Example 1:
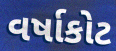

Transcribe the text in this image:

વર્ષાકોટ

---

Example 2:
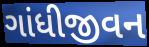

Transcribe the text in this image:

ગાંધીજીવન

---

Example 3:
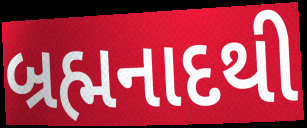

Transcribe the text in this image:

બ્રહ્મનાદથી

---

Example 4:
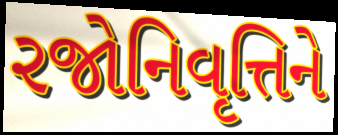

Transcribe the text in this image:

રજોનિવૃત્તિને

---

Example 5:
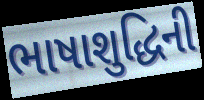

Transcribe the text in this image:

ભાષાશુદ્ધિની